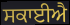
ਸਕਾਈਐ